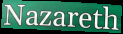
Nazareth